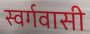
स्वर्गवासी